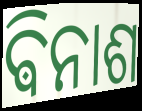
ଵିନାଶ